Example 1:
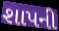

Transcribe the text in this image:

શાપની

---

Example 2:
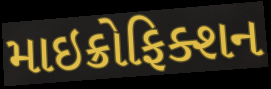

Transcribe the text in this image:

માઇક્રોફિક્શન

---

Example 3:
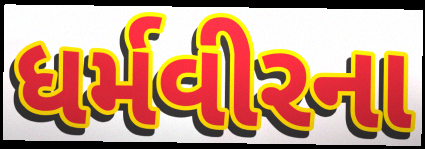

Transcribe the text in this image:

ધર્મવીરના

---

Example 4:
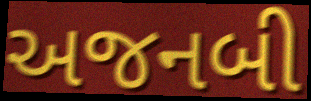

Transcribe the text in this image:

અજનબી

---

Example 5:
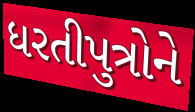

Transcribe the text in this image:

ધરતીપુત્રોને